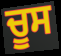
ਚੂਸ